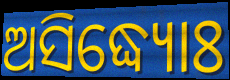
ଅସିଦ୍ଧ୍ୟୋଃ